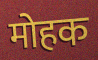
मोहक